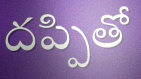
దప్పితో